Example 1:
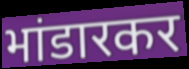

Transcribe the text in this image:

भांडारकर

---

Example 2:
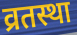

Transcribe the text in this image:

व्रतस्था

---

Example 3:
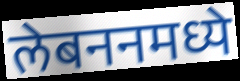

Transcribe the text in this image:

लेबननमध्ये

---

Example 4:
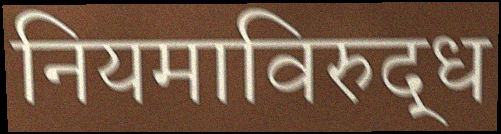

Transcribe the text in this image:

नियमाविरुद्ध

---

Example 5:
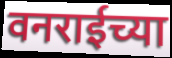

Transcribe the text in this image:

वनराईच्या